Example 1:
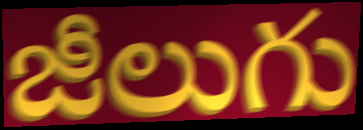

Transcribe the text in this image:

జీలుగు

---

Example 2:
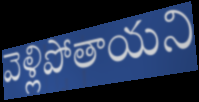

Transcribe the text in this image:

వెళ్లిపోతాయని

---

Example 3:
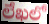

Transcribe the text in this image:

లేఖలో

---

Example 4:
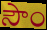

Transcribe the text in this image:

సౌం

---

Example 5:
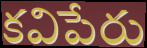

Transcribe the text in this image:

కవిపేరు